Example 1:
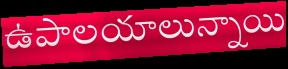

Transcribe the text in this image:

ఉపాలయాలున్నాయి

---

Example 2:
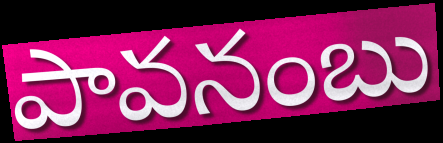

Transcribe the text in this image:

పావనంబు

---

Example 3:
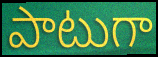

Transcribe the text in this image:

పాటుగా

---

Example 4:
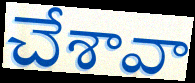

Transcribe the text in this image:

చేశావా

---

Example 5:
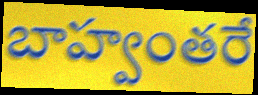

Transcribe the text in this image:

బాహ్వంతరే